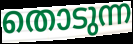
തൊടുന്ന